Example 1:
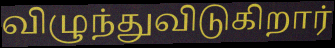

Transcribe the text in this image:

விழுந்துவிடுகிறார்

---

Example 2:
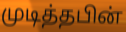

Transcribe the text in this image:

முடித்தபின்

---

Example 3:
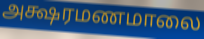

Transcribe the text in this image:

அக்ஷரமணமாலை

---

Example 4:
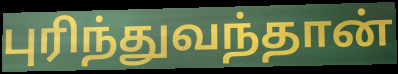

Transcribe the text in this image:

புரிந்துவந்தான்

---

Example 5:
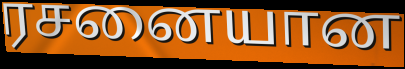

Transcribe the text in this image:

ரசனையான